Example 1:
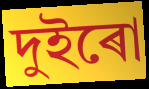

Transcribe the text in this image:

দুইৰো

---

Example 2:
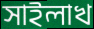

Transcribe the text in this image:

সাইলাখ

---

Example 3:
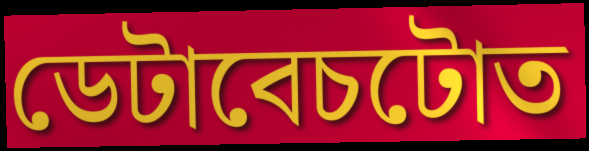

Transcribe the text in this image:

ডেটাবেচটোত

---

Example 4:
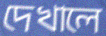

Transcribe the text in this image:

দেখালে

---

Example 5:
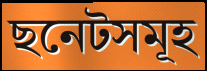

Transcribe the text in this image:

ছনেটসমূহ